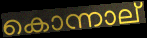
കൊന്നാല്